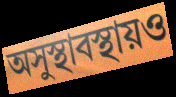
অসুস্থাবস্থায়ও